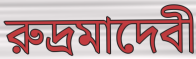
রুদ্রমাদেবী